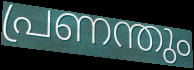
പ്രണന്തും